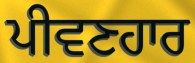
ਪੀਵਣਹਾਰ